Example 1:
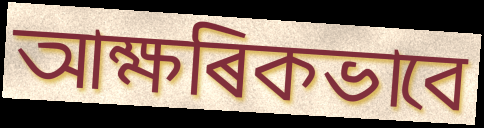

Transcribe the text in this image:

আক্ষৰিকভাবে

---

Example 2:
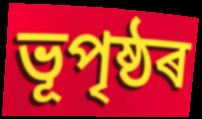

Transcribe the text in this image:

ভূপৃষ্ঠৰ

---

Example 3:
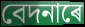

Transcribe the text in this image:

বেদনাৰে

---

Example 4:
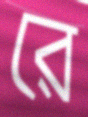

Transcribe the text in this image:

ৱে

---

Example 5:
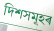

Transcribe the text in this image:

দিশসমূহৰ